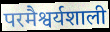
परमैश्वर्यशाली